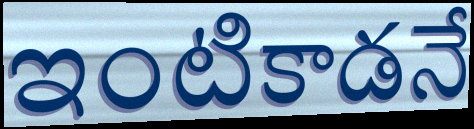
ఇంటికాడనే